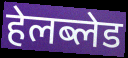
हेलब्लेड